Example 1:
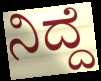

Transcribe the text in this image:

ನಿದ್ದೆ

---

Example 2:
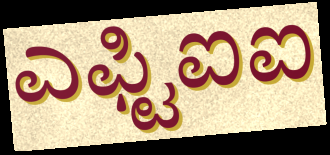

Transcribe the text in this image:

ಎಫ್ಟಿಐಐ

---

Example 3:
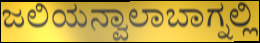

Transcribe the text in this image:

ಜಲಿಯನ್ವಾಲಾಬಾಗ್ನಲ್ಲಿ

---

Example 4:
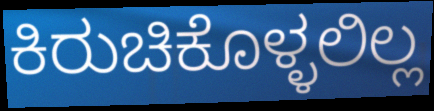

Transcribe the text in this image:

ಕಿರುಚಿಕೊಳ್ಳಲಿಲ್ಲ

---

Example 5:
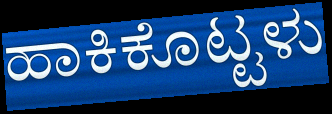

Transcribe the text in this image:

ಹಾಕಿಕೊಟ್ಟಳು